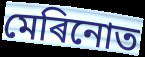
মেৰিনোত